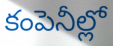
కంపెనీల్లో